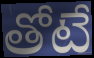
తోటే